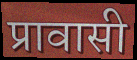
प्रावासी